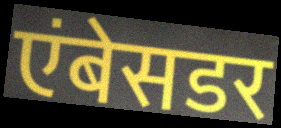
एंबेसडर